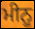
ਮੀਨੂ